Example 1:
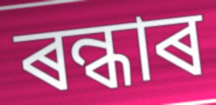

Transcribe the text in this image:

ৰন্ধাৰ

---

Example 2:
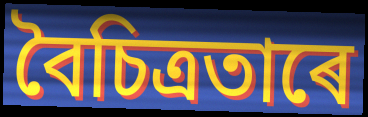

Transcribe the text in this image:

বৈচিত্ৰতাৰে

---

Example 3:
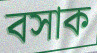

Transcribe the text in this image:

বসাক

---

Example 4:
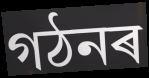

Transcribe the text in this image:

গঠনৰ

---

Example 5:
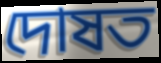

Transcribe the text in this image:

দোষত